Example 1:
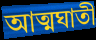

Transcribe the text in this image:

আত্মঘাতী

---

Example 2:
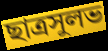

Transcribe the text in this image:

ছাত্রসুলভ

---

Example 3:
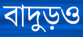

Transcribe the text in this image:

বাদুড়ও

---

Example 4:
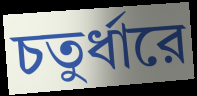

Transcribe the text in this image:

চতুর্ধারে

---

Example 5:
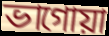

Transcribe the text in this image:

ভাগোয়া